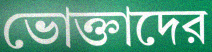
ভোক্তাদের